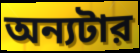
অন্যটার